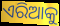
ଏରିଆକୁ